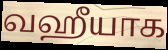
வஹீயாக